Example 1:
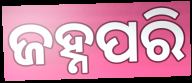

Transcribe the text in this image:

ଜହ୍ନପରି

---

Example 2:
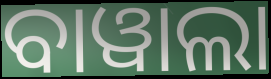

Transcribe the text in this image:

ବାୱାଲା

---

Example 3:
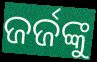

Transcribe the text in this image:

ଜର୍ଜଙ୍କୁ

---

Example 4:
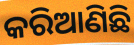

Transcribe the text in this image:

କରିଆଣିଛି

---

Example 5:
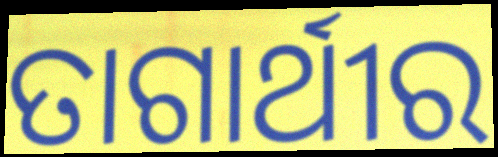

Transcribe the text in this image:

ତାଗାର୍ଥୀର